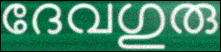
ദേവഗുരു